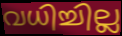
വധിച്ചില്ല